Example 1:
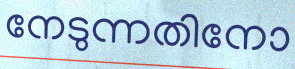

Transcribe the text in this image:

നേടുന്നതിനോ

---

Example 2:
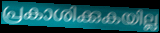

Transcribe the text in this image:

പ്രകാശിക്കുകയില്ല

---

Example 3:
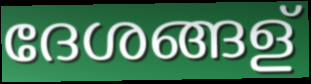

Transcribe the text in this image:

ദേശങ്ങള്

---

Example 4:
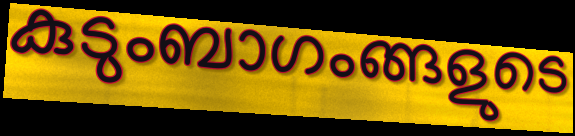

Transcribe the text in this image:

കുടുംബാഗംങ്ങളുടെ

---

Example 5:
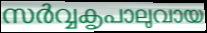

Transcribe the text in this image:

സർവ്വകൃപാലുവായ